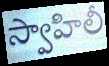
స్వాహిలీ